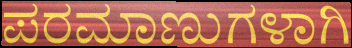
ಪರಮಾಣುಗಳಾಗಿ